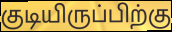
குடியிருப்பிற்கு